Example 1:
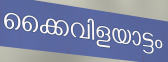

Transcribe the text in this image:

ക്കൈവിളയാട്ടം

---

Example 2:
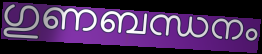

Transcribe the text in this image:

ഗുണബന്ധനം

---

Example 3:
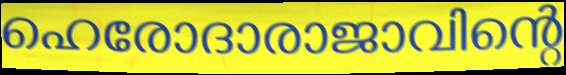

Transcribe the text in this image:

ഹെരോദാരാജാവിന്റെ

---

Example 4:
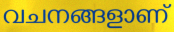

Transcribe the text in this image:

വചനങ്ങളാണ്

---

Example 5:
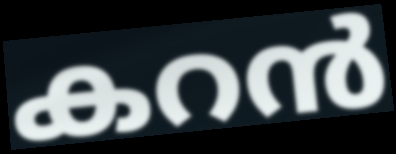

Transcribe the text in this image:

കറൻ